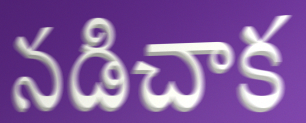
నడిచాక